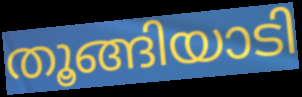
തൂങ്ങിയാടി